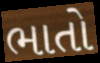
ભાતો